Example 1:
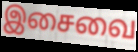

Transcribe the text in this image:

இசைவை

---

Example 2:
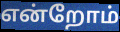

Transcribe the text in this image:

என்றோம்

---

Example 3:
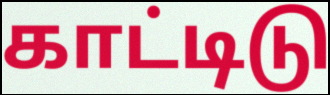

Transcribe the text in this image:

காட்டிடு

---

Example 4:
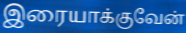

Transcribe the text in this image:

இரையாக்குவேன்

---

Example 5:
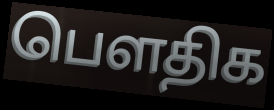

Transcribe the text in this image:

பௌதிக